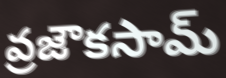
వ్రజౌకసామ్